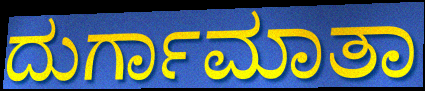
ದುರ್ಗಾಮಾತಾ